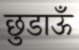
छुडाऊँ